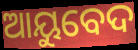
ଆୟୁବେଦ